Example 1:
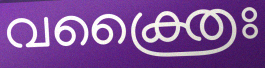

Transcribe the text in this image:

വക്ത്രൈഃ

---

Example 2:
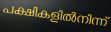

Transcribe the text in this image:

പക്ഷികളിൽനിന്ന്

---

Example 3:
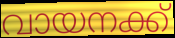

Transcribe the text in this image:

വായനക്ക്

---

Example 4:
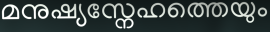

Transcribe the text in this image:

മനുഷ്യസ്നേഹത്തെയും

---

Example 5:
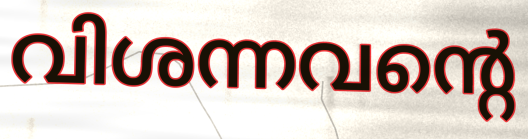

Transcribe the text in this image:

വിശന്നവന്റെ